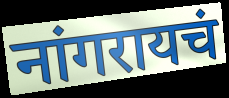
नांगरायचं